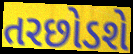
તરછોડશે